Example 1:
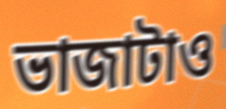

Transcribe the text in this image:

ভাজাটাও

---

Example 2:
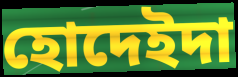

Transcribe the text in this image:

হোদেইদা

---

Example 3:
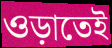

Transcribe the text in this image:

ওড়াতেই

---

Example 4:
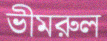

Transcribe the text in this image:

ভীমরুল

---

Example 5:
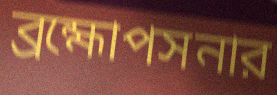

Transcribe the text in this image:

ব্রহ্মোপসনার